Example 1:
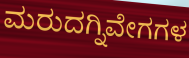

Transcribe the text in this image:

ಮರುದಗ್ನಿವೇಗಗಳ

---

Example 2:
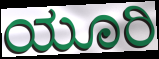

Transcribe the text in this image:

ಯೂರಿ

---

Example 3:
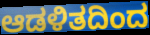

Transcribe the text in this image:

ಆಡಳಿತದಿಂದ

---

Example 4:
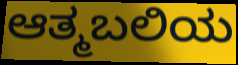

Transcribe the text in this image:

ಆತ್ಮಬಲಿಯ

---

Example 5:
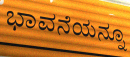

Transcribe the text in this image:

ಭಾವನೆಯನ್ನೂ